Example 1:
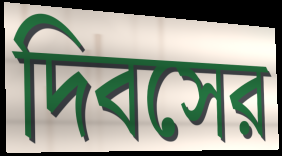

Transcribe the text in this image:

দিবসের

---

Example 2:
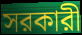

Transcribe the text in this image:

সরকারী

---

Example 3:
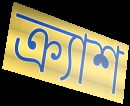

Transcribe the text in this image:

ক্র্যাশ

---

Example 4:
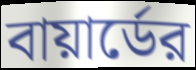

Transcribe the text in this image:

বায়ার্ডের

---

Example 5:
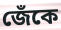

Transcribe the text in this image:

জেঁকে